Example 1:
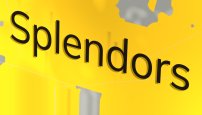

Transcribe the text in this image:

Splendors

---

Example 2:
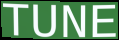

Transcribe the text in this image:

TUNE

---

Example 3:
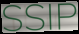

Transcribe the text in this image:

SSIP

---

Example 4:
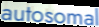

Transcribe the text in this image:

autosomal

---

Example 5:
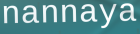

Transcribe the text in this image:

nannaya